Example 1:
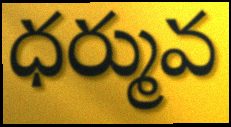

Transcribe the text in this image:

ధర్మువ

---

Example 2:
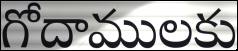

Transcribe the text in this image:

గోదాములకు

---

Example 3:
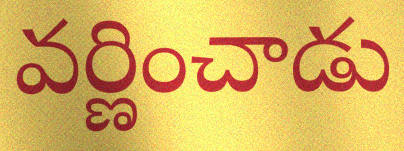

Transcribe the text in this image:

వర్ణించాడు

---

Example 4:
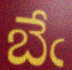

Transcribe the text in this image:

బేఁ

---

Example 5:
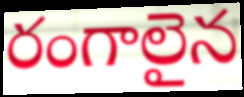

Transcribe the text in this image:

రంగాలైన